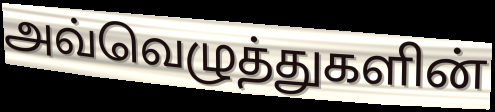
அவ்வெழுத்துகளின்